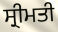
ਸ੍ਰੀਮਤੀ